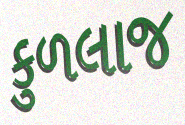
કુળલાજ